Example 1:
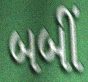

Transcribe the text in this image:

બબીં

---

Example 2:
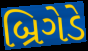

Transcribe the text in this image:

બ્રિગેડે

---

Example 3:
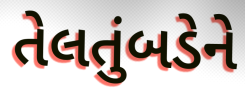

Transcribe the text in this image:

તેલતુંબડેને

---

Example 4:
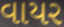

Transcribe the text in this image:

વાયર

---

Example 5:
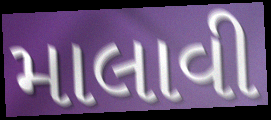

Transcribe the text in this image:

માલાવી